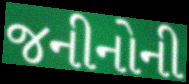
જનીનોની